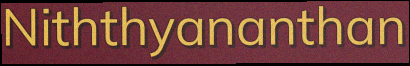
Niththyananthan